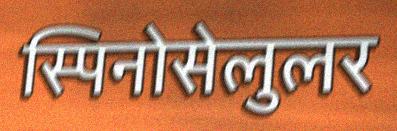
स्पिनोसेलुलर